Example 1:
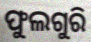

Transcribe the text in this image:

ଫୁଲଗୁରି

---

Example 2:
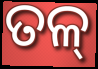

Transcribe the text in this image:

ତଳ୍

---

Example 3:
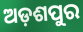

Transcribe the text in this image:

ଅଡ଼ଶପୁର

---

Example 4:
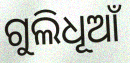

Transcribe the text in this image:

ଗୁଲିଧୂଆଁ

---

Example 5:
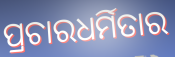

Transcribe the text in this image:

ପ୍ରଚାରଧର୍ମିତାର